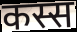
कस्स